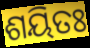
ଶୟିତଃ